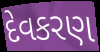
દેવકરણ